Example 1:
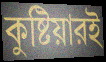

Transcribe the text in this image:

কুষ্টিয়ারই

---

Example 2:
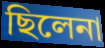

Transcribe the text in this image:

ছিলেনা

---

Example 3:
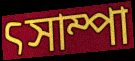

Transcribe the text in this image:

ৎসাম্পা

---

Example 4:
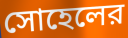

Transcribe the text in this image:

সোহেলের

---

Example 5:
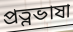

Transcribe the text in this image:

প্রত্নভাষা